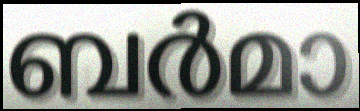
ബർമാ